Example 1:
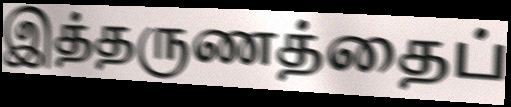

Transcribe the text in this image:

இத்தருணத்தைப்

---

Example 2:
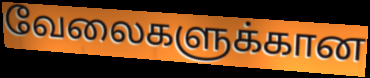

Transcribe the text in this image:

வேலைகளுக்கான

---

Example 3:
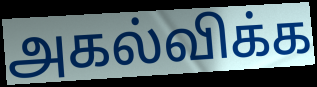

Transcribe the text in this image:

அகல்விக்க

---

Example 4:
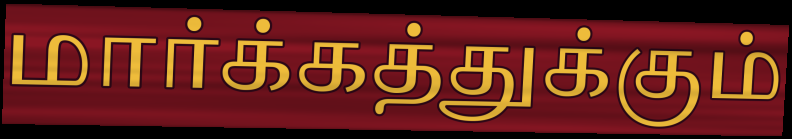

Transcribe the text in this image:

மார்க்கத்துக்கும்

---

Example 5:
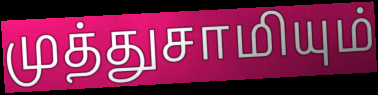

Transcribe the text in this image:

முத்துசாமியும்